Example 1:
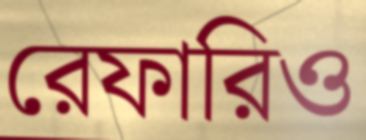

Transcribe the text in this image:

রেফারিও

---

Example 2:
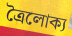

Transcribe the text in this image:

ত্রৈলোক্য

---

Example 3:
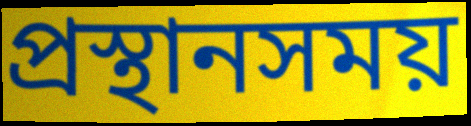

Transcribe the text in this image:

প্রস্থানসময়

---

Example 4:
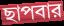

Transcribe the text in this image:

ছাপবার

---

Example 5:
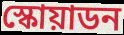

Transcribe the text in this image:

স্কোয়াডন